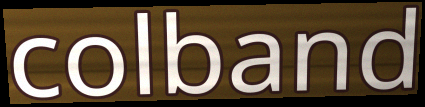
colband